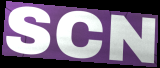
SCN